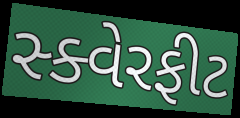
સ્ક્વેરફીટ